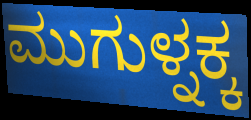
ಮುಗುಳ್ನಕ್ಕ